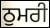
ਠੁਮਰੀ